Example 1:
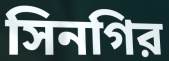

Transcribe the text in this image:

সিনগির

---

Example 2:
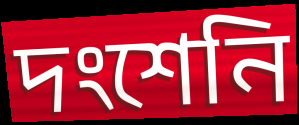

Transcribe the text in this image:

দংশেনি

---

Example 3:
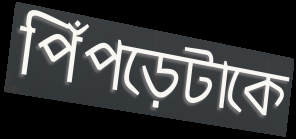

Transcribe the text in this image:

পিঁপড়েটাকে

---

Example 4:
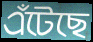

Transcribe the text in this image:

এঁটেছে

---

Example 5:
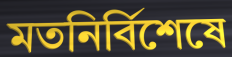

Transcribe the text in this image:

মতনির্বিশেষে